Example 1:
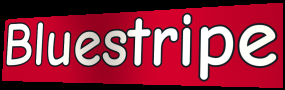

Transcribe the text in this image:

Bluestripe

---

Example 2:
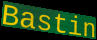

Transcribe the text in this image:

Bastin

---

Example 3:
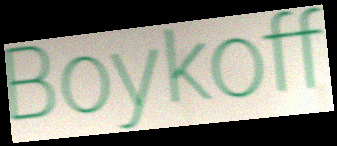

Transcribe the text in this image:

Boykoff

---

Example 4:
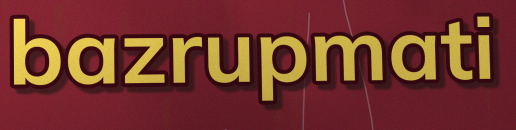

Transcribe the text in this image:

bazrupmati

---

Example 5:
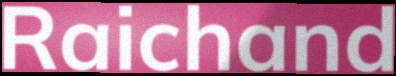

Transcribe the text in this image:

Raichand